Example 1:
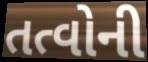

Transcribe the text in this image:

તત્વોની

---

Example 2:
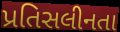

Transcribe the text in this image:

પ્રતિસલીનતા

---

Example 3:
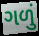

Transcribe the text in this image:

ગળું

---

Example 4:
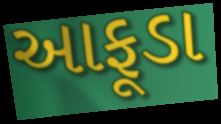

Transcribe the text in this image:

આફૂડા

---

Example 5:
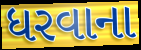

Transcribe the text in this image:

ધરવાના